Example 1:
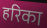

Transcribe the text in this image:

हरिका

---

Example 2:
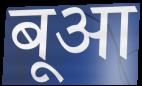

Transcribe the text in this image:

बूआ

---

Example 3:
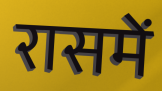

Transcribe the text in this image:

रासमें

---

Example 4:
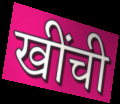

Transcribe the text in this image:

खींची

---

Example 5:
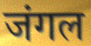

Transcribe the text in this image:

जंगल